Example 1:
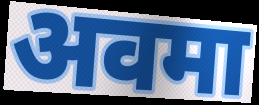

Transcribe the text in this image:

अवमा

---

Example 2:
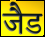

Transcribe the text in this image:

जैड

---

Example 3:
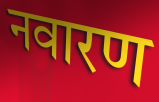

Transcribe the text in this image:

नवारण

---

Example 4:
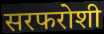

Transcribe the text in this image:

सरफरोशी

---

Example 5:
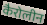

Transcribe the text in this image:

कैरोलीन